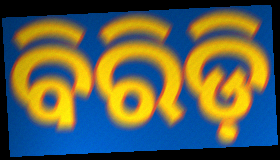
ବିରିଡ଼ି